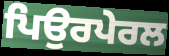
ਪਿਉਰਪੇਰਲ